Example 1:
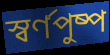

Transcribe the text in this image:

স্বর্ণপুষ্প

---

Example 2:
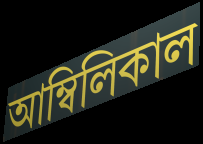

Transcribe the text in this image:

আম্বিলিকাল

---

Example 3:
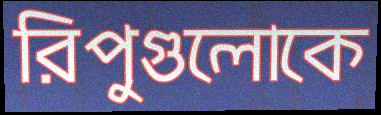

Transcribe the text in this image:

রিপুগুলোকে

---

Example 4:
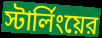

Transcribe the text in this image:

স্টার্লিংয়ের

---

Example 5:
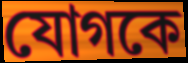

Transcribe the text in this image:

যোগকে